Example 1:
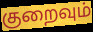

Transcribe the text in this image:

குறைவும்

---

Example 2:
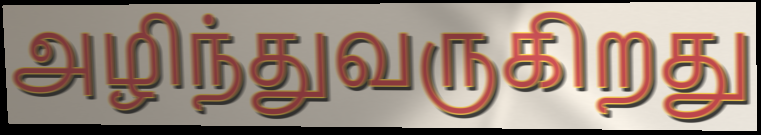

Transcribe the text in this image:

அழிந்துவருகிறது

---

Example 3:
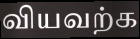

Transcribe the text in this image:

வியவற்க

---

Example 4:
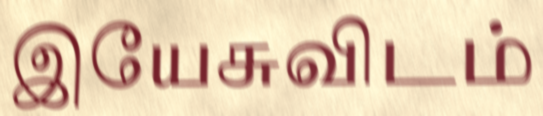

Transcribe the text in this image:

இயேசுவிடம்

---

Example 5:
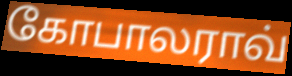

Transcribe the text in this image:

கோபாலராவ்